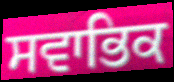
ਸਵਾਭਿਕ